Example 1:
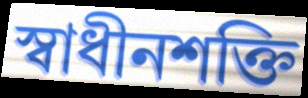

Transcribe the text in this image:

স্বাধীনশক্তি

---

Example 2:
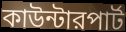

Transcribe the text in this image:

কাউন্টারপার্ট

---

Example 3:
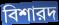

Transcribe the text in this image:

বিশারদ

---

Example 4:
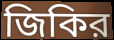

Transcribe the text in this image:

জিকির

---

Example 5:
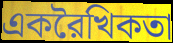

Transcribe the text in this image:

একরৈখিকতা